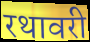
रथावरी